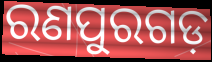
ରଣପୁରଗଡ଼